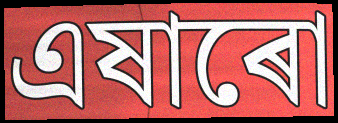
এষাৰো